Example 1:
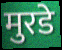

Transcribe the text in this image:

मुरडे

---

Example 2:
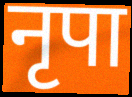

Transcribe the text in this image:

नृपा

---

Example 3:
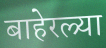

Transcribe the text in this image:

बाहेरल्या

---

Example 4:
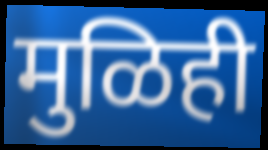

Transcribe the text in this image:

मुळिही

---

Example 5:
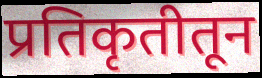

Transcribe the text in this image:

प्रतिकृतीतून